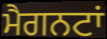
ਮੈਗਨਟਾਂ